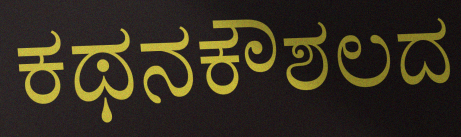
ಕಥನಕೌಶಲದ